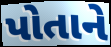
પોતાને